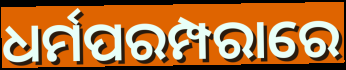
ଧର୍ମପରମ୍ପରାରେ